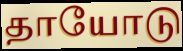
தாயோடு